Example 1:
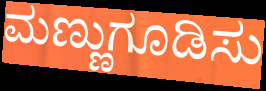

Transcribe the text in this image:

ಮಣ್ಣುಗೂಡಿಸು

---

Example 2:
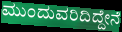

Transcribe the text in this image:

ಮುಂದುವರಿದಿದ್ದೇನೆ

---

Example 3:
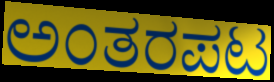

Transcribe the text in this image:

ಅಂತರಪಟ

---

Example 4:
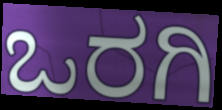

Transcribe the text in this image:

ಒರಗಿ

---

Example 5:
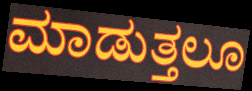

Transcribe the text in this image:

ಮಾಡುತ್ತಲೂ